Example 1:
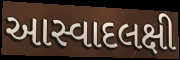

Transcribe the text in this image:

આસ્વાદલક્ષી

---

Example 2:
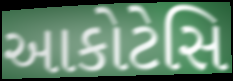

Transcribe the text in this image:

આકોટેસિ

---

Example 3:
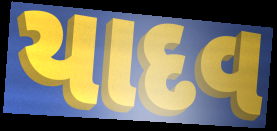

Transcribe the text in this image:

યાદવ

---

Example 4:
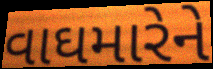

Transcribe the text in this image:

વાઘમારેને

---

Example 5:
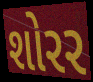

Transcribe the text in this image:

શોરર